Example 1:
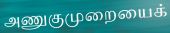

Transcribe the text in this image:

அணுகுமுறையைக்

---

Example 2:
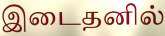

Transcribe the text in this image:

இடைதனில்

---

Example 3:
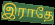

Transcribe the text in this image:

இராதே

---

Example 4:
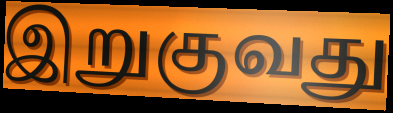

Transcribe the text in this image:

இறுகுவது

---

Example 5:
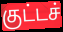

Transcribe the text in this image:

குட்டச்